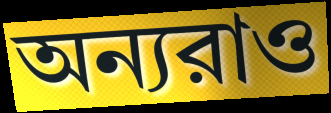
অন্যরাও